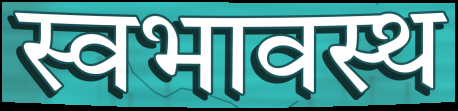
स्वभावस्थ